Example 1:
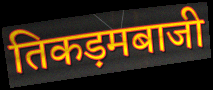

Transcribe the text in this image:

तिकड़मबाजी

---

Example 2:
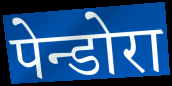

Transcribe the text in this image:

पेन्डोरा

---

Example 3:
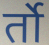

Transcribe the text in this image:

र्तो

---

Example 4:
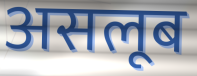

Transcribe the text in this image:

असलूब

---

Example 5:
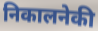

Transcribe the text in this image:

निकालनेकी